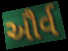
ઔર્વ